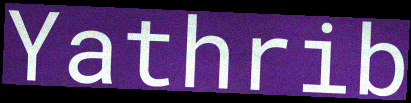
Yathrib